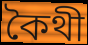
কৈথী